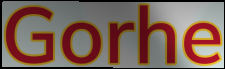
Gorhe